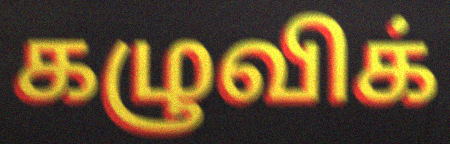
கழுவிக்